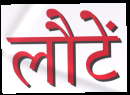
लौटें